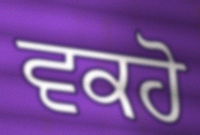
ਵਕਹੋ